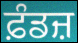
ਫ਼ੰਡਜ਼